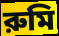
রুমি